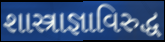
શાસ્ત્રાજ્ઞાવિરુદ્ધ